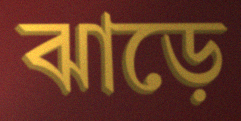
ঝাড়ে